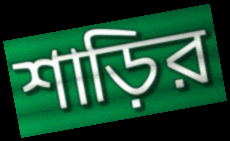
শাড়ির